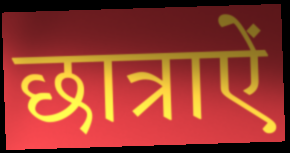
छात्राऐं